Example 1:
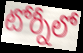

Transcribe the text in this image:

టోర్నీలో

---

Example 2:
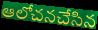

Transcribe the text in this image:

ఆలోచనచేసిన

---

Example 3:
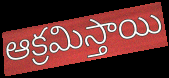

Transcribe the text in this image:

ఆక్రమిస్తాయి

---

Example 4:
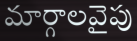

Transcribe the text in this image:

మార్గాలవైపు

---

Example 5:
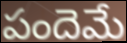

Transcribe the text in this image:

పందెమే